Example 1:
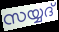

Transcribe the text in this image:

സയ്യദ്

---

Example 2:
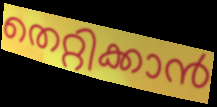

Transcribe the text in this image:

തെറ്റിക്കാൻ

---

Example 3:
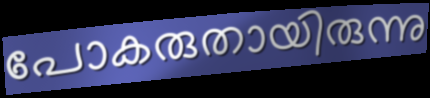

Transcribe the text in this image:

പോകരുതായിരുന്നു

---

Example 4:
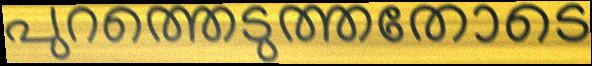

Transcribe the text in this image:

പുറത്തെടുത്തതോടെ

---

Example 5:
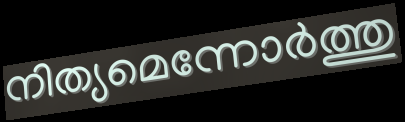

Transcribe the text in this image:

നിത്യമെന്നോർത്തു